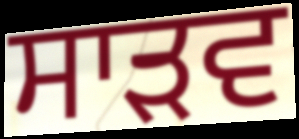
ਸਾੜਵ